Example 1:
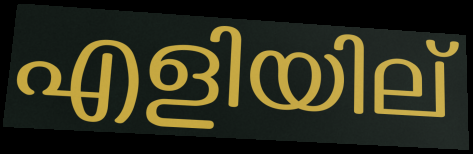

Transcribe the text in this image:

എളിയില്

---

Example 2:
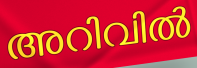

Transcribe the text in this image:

അറിവിൽ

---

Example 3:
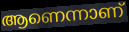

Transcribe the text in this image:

ആണെന്നാണ്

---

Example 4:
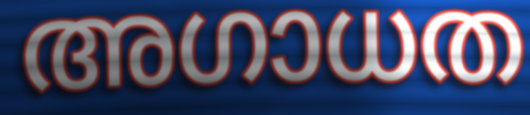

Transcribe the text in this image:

അഗാധത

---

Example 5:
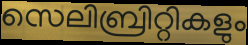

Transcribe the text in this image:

സെലിബ്രിറ്റികളും